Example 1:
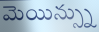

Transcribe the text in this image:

మెయిన్స్ను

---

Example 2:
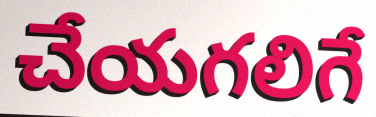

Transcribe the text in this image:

చేయగలిగే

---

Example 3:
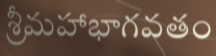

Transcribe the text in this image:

శ్రీమహాభాగవతం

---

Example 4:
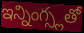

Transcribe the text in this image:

ఇన్నింగ్స్లతో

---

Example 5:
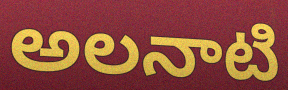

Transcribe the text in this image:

అలనాటి